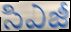
సిఎజీ